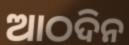
ଆଠଦିନ